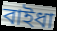
বাইধা